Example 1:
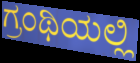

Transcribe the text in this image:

ಗ್ರಂಥಿಯಲ್ಲಿ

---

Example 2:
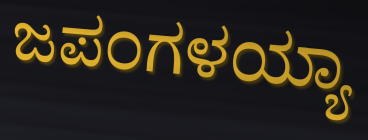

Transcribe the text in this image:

ಜಪಂಗಳಯ್ಯಾ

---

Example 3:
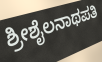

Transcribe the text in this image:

ಶ್ರೀಶೈಲನಾಥಪತಿ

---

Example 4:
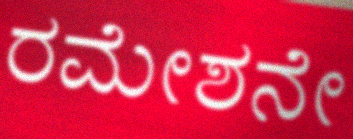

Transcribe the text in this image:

ರಮೇಶನೇ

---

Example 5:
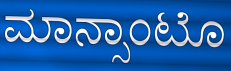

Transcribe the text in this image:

ಮಾನ್ಸಾಂಟೊ